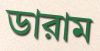
ডারাম